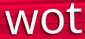
wot